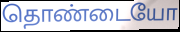
தொண்டையோ